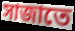
সাজাতে